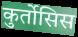
कुर्तोसिस